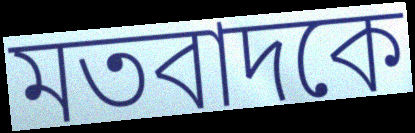
মতবাদকে